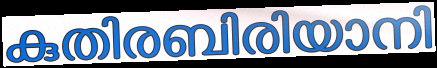
കുതിരബിരിയാനി